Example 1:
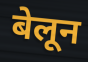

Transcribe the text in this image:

बेलून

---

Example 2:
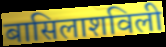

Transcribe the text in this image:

बासिलाशविली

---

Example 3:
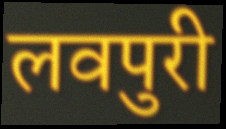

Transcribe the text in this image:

लवपुरी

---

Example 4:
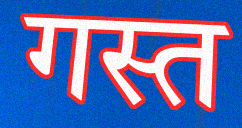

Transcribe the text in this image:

गस्त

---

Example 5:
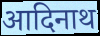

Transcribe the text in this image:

आदिनाथ